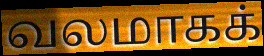
வலமாகக்